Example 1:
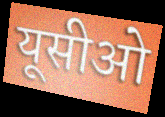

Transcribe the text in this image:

यूसीओ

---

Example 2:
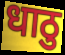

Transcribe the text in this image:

धाठु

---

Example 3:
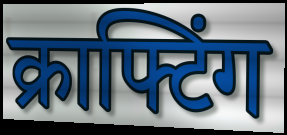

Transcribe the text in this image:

क्राफ्टिंग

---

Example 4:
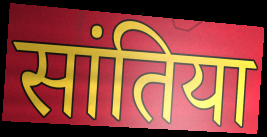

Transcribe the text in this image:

सांतिया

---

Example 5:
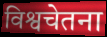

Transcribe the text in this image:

विश्वचेतना